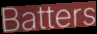
Batters